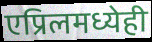
एप्रिलमध्येही